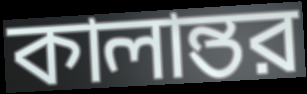
কালান্তর